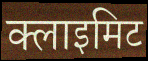
क्लाइमिट